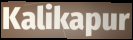
Kalikapur